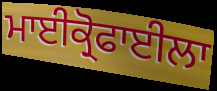
ਮਾਈਕ੍ਰੋਫਾਈਲਾ